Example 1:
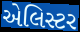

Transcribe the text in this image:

એલિસ્ટર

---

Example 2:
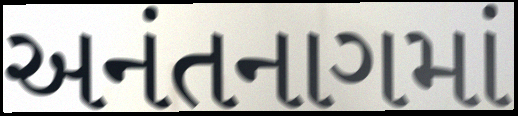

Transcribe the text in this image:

અનંતનાગમાં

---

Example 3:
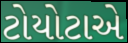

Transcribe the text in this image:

ટોયોટાએ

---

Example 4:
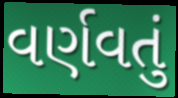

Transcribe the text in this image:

વર્ણવતું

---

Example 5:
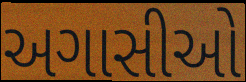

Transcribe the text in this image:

અગાસીઓ